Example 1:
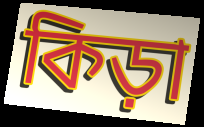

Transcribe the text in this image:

কিড়া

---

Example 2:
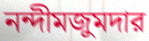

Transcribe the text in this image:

নন্দীমজুমদার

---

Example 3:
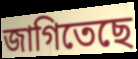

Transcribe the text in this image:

জাগিতেছে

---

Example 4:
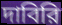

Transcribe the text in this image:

দাবিরি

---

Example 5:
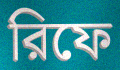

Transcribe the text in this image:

রিফে